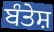
ਬੰਤੇਸ਼